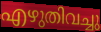
എഴുതിവച്ചു